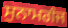
ਸੁਨਾਮਗੰਜ